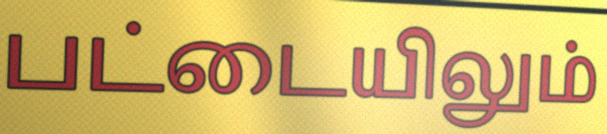
பட்டையிலும்